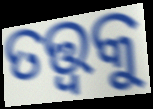
ତତ୍ତ୍ଵକୁ